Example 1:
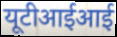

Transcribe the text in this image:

यूटीआईआई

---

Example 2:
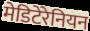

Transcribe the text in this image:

मेडिटेरेनियन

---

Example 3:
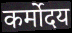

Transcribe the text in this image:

कर्मोदय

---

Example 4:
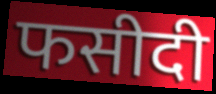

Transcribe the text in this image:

फसीदी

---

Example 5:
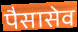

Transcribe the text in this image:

पैसासेव